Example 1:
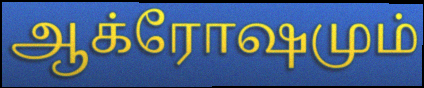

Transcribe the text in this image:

ஆக்ரோஷமும்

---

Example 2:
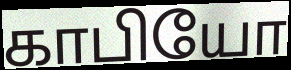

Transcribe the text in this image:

காபியோ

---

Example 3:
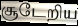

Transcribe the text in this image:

சூடேறிய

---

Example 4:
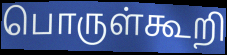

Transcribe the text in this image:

பொருள்கூறி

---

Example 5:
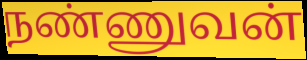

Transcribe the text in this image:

நண்ணுவன்